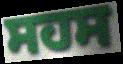
ਸਹਸ